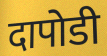
दापोडी